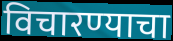
विचारण्याचा